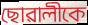
ছোৱালীকে